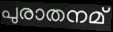
പുരാതനമ്